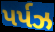
પર્પઝ